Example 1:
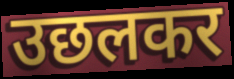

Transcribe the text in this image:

उछलकर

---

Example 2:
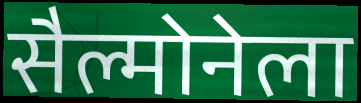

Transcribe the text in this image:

सैल्मोनेला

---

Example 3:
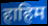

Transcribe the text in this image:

हाहिम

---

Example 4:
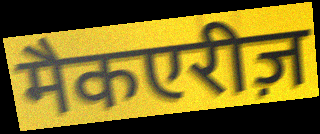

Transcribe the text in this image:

मैकएरीज़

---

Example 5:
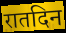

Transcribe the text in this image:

रातदिन